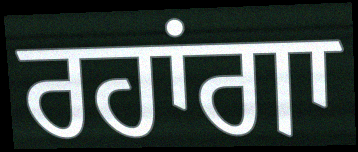
ਰਹਾਂਗਾ